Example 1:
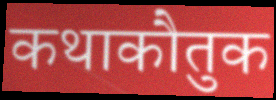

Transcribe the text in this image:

कथाकौतुक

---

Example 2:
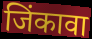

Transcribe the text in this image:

जिंकावा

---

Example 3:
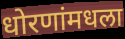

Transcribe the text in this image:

धोरणांमधला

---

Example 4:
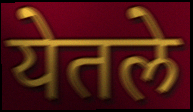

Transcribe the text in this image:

येतले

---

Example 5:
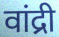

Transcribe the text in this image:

वांद्री